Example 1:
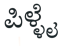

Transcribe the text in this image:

ಪಿಳ್ಳೈ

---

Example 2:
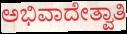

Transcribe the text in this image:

ಅಭಿವಾದೇತ್ವಾತಿ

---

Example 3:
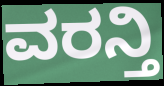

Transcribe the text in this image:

ವರನ್ತಿ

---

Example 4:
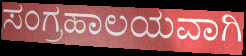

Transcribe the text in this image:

ಸಂಗ್ರಹಾಲಯವಾಗಿ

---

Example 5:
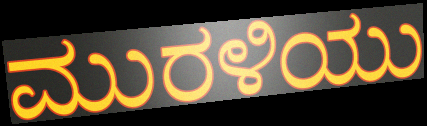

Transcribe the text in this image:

ಮುರಳಿಯು